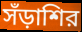
সঁড়াশির